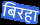
बिरहा